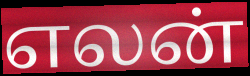
எலன்